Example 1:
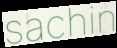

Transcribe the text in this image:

sachin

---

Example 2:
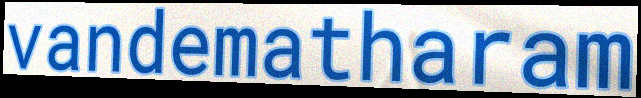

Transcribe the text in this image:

vandematharam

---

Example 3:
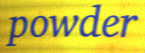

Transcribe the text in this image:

powder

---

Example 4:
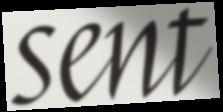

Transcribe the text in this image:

sent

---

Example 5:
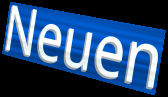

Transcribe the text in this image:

Neuen